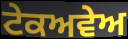
ਟੇਕਅਵੇਅ